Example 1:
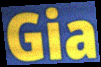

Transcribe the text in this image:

Gia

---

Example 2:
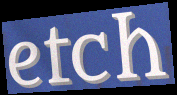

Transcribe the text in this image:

etch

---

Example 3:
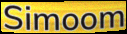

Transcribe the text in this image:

Simoom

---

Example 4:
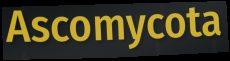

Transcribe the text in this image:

Ascomycota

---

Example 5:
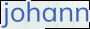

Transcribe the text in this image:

johann